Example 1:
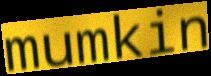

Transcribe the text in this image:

mumkin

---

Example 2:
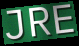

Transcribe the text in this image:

JRE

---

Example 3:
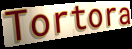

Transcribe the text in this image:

Tortora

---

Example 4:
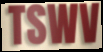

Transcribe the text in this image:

TSWV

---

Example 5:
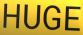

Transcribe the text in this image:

HUGE